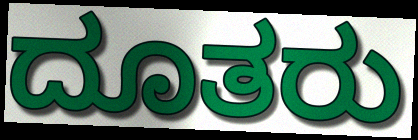
ದೂತರು